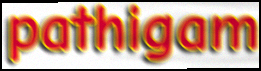
pathigam